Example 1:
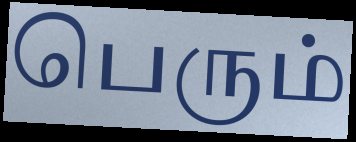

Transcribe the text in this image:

பெரும்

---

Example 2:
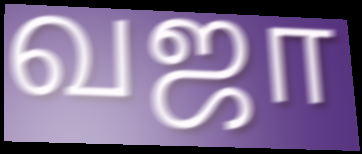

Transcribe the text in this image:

வஜா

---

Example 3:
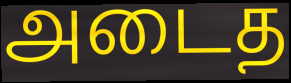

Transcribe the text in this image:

அடைத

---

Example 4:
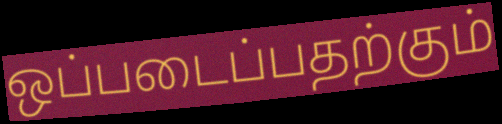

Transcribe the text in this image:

ஒப்படைப்பதற்கும்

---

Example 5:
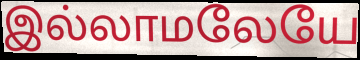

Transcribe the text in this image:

இல்லாமலேயே